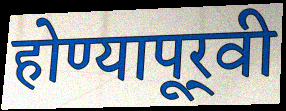
होण्यापूर्वी